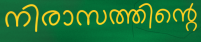
നിരാസത്തിന്റെ